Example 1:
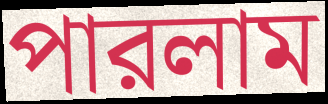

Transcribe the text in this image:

পারলাম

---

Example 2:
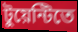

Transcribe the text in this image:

টুয়েন্টিতে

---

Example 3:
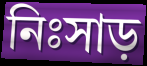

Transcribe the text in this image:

নিঃসাড়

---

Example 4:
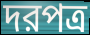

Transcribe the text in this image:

দরপত্র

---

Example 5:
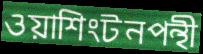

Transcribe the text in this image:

ওয়াশিংটনপন্থী